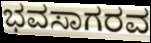
ಭವಸಾಗರವ